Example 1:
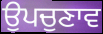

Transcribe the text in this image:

ਉਪਚੁਣਾਵ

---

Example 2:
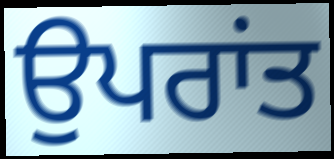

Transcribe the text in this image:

ਉਪਰਾਂਤ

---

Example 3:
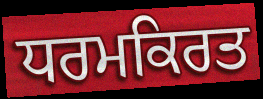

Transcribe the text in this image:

ਧਰਮਕਿਰਤ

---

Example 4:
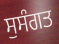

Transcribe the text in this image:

ਸੁਸੰਗਤ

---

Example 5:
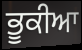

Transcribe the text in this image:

ਭੂਕੀਆ